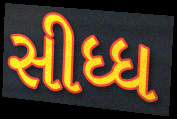
સીધ્ધ